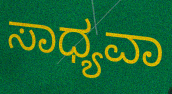
ಸಾಧ್ಯವಾ